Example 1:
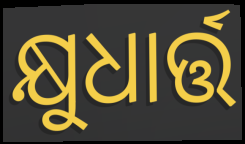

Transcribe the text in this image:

କ୍ଷୁଧାର୍ତ୍ତ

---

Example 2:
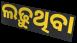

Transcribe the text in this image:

ଲଢ଼ୁଥିବା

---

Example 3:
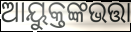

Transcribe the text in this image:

ଆୟୁକ୍ତଙ୍କଭତ୍ତା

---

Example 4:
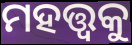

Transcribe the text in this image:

ମହତ୍ତ୍ଵକୁ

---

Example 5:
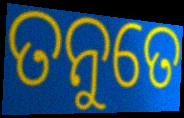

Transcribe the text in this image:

ତନୁତେ